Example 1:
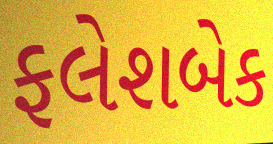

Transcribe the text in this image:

ફલેશબેક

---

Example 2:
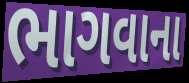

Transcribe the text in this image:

ભાગવાના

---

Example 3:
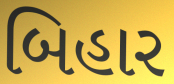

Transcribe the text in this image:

બિહાર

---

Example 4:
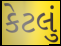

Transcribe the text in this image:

કેટલું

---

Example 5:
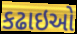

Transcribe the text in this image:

કઢાઇઓ